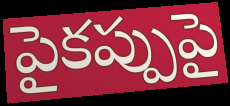
పైకప్పుపై